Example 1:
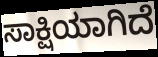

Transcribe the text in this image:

ಸಾಕ್ಷಿಯಾಗಿದೆ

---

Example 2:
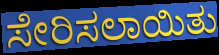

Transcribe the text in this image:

ಸೇರಿಸಲಾಯಿತು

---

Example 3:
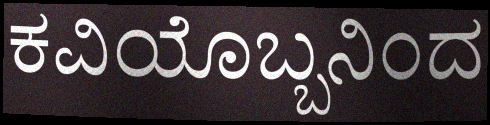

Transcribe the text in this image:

ಕವಿಯೊಬ್ಬನಿಂದ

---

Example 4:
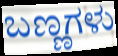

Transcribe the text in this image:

ಬಣ್ಣಗಳು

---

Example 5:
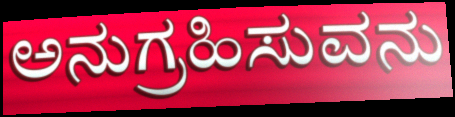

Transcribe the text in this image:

ಅನುಗ್ರಹಿಸುವನು